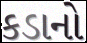
કડાનો